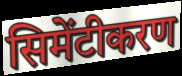
सिमेंटीकरण